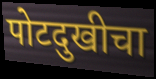
पोटदुखीचा